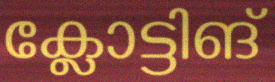
ക്ലോട്ടിങ്